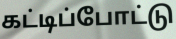
கட்டிப்போட்டு